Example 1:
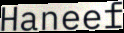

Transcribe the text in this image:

Haneef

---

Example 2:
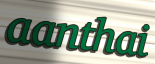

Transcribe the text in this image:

aanthai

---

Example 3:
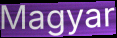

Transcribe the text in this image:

Magyar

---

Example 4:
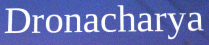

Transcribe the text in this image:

Dronacharya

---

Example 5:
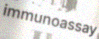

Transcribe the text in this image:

immunoassay